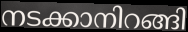
നടക്കാനിറങ്ങി